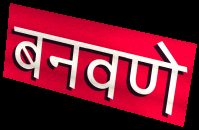
बनवणे